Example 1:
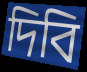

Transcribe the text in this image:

দিবি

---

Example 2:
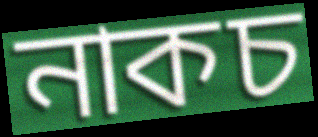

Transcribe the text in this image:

নাকচ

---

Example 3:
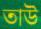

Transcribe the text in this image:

তাউ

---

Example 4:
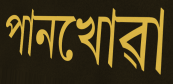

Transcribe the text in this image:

পানখোৱা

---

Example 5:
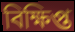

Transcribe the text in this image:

বিক্ষিপ্ত